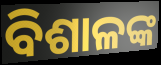
ବିଶାଳଙ୍କ